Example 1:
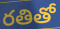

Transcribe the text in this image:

రతితో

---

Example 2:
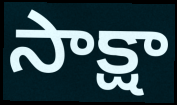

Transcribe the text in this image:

సాక్షా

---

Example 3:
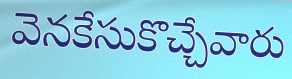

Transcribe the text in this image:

వెనకేసుకొచ్చేవారు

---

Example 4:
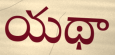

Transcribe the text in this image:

యథా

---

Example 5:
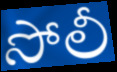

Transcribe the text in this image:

సోలీ